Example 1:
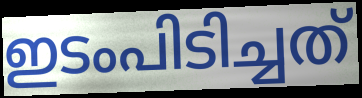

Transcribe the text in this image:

ഇടംപിടിച്ചത്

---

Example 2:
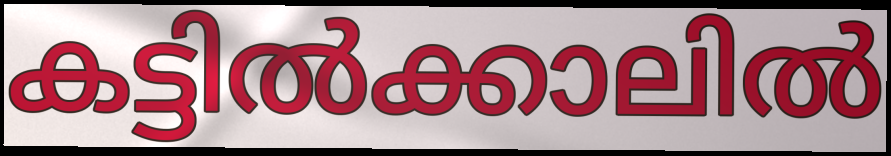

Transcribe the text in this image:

കട്ടിൽക്കാലിൽ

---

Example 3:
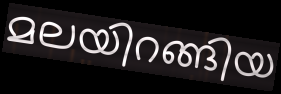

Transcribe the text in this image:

മലയിറങ്ങിയ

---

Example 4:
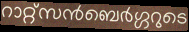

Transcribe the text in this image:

റാറ്റ്സൻബെർഗ്ഗറുടെ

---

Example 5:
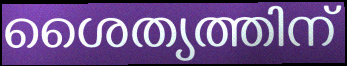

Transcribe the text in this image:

ശൈത്യത്തിന്